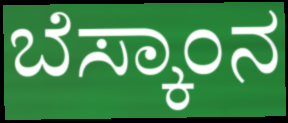
ಬೆಸ್ಕಾಂನ